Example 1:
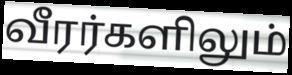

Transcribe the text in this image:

வீரர்களிலும்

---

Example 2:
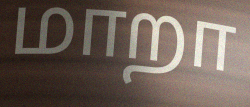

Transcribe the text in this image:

மாறா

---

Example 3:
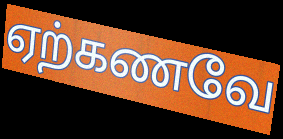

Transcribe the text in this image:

ஏற்கணவே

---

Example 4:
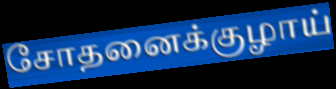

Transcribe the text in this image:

சோதனைக்குழாய்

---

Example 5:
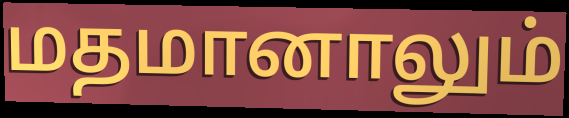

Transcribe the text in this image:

மதமானாலும்